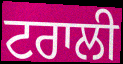
ਟਰਾਲੀ